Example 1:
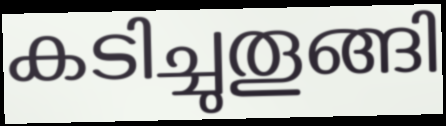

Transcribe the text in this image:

കടിച്ചുതൂങ്ങി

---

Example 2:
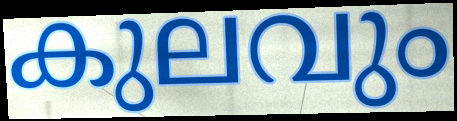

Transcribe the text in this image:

കുലവും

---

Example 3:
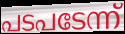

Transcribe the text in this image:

പടപടേന്ന്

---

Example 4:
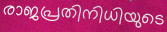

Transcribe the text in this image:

രാജപ്രതിനിധിയുടെ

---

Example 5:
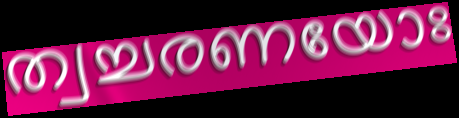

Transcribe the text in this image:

ത്വച്ചരണയോഃ